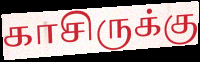
காசிருக்கு